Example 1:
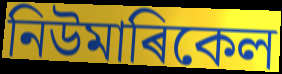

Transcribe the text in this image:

নিউমাৰিকেল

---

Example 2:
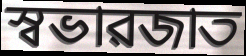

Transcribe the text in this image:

স্বভাৱজাত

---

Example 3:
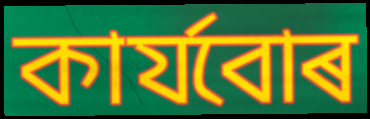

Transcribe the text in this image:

কাৰ্যবোৰ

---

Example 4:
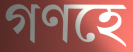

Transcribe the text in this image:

গণহে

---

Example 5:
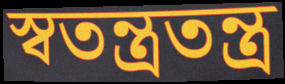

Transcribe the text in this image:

স্বতন্ত্ৰতন্ত্ৰ